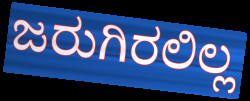
ಜರುಗಿರಲಿಲ್ಲ